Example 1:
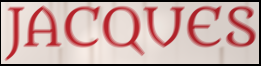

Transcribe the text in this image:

JACQUES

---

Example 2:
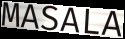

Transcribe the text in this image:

MASALA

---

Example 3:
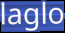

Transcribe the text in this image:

laglo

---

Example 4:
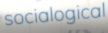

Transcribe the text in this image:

socialogical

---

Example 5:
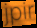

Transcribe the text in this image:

jpir